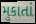
મુકાતાં